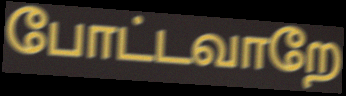
போட்டவாறே